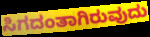
ಸಿಗದಂತಾಗಿರುವುದು